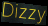
Dizzy